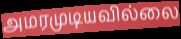
அமரமுடியவில்லை